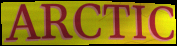
ARCTIC